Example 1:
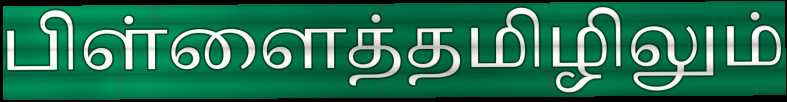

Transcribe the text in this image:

பிள்ளைத்தமிழிலும்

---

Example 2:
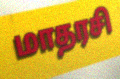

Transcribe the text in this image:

மாதரசி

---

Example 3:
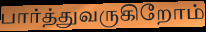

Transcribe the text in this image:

பார்த்துவருகிறோம்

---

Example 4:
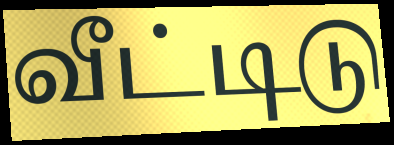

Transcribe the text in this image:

வீட்டிடு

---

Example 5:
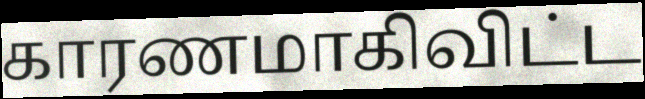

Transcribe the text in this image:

காரணமாகிவிட்ட